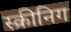
स्क्रीनिग